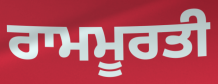
ਰਾਮਮੂਰਤੀ